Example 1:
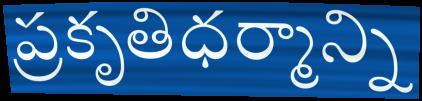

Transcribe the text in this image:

ప్రకృతిధర్మాన్ని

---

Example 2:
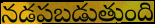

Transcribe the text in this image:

నడపబడుతుంది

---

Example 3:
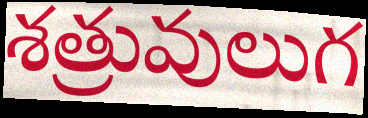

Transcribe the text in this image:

శత్రువులుగ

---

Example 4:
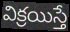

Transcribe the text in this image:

విక్రయిస్తే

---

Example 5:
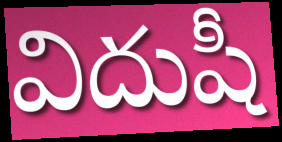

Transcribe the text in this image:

విదుషీ